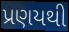
પ્રણયથી